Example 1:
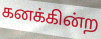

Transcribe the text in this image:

கனக்கின்ற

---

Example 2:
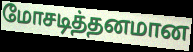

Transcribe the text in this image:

மோசடித்தனமான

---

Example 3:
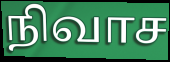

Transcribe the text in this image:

நிவாச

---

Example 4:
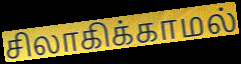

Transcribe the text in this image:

சிலாகிக்காமல்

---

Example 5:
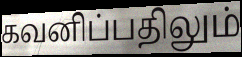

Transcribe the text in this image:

கவனிப்பதிலும்